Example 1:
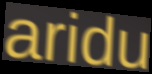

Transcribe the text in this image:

aridu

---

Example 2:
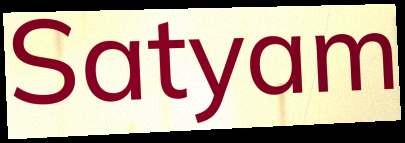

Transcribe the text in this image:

Satyam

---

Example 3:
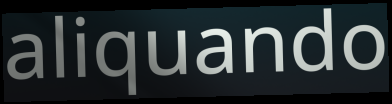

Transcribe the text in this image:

aliquando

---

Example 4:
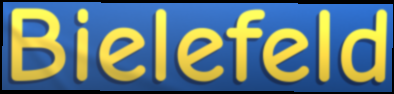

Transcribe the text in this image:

Bielefeld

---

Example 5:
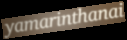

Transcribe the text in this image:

yamarinthanai